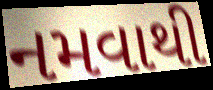
નમવાથી